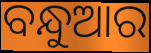
ବନ୍ଧୁଆର